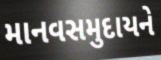
માનવસમુદાયને